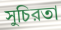
সুচিরতা